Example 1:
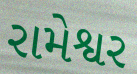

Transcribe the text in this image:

રામેશ્વર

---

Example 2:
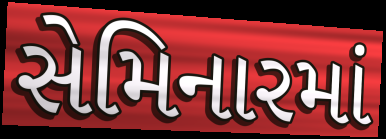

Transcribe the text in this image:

સેમિનારમાં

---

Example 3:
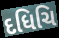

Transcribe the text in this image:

દધિચિ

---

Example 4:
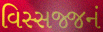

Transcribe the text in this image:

વિસ્સજ્જનં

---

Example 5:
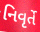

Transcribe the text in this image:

નિવૃર્તે